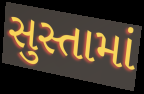
સુસ્તામાં